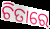
ଚିତାରେ